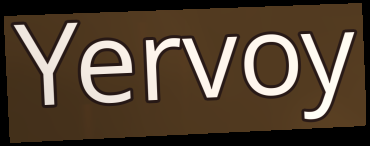
Yervoy